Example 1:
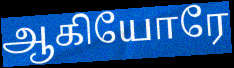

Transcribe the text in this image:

ஆகியோரே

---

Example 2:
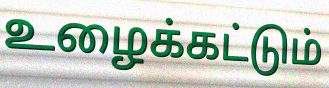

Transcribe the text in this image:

உழைக்கட்டும்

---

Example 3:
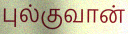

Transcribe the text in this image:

புல்குவான்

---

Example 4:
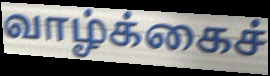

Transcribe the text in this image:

வாழ்க்கைச்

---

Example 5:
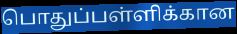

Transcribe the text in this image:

பொதுப்பள்ளிக்கான